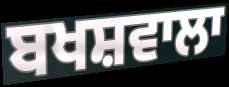
ਬਖਸ਼ਵਾਲਾ